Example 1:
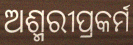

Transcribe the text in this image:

ଅଶ୍ମରୀପ୍ରକର୍ମ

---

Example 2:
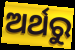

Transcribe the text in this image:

ଅର୍ଥରୁ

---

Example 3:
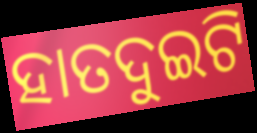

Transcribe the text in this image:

ହାତଦୁଇଟି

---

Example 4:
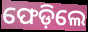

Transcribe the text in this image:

ଫେଡ଼ିଲେ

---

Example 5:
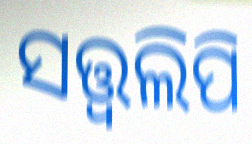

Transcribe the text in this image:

ସତ୍ତ୍ୱଲିପି